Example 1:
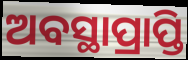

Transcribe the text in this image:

ଅବସ୍ଥାପ୍ରାପ୍ତି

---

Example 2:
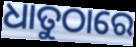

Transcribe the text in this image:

ଧାତୁଠାରେ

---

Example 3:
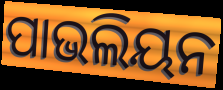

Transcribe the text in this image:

ପାଭଲିୟନ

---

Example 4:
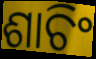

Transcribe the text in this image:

ଶାଚିଂ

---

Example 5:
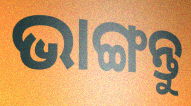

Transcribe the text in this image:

ଭାଙ୍ଗନ୍ତୁ